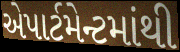
એપાર્ટમેન્ટમાંથી